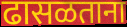
ढासळताना